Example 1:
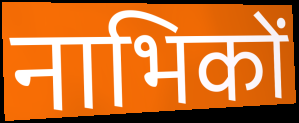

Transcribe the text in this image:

नाभिकों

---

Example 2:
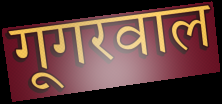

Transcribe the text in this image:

गूगरवाल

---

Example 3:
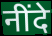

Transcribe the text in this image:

नींदे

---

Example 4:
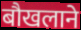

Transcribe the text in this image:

बौखलाने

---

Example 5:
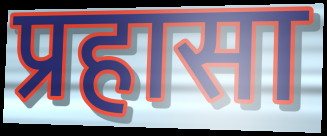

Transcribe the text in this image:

प्रहासा